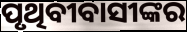
ପୃଥିବୀବାସୀଙ୍କର